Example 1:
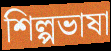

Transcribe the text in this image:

শিল্পভাষা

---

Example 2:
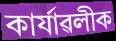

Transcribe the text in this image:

কাৰ্যাৱলীক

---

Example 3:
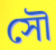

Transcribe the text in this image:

সৌ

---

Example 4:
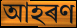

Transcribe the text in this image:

আহৰণ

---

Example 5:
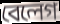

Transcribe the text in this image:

বেলেগ